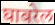
घाबरेल